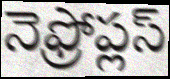
నెఫ్రోప్లస్